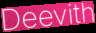
Deevith